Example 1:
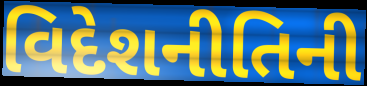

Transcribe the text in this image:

વિદેશનીતિની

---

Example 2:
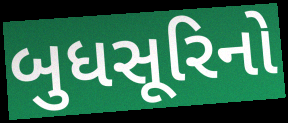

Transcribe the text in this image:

બુધસૂરિનો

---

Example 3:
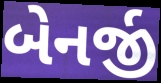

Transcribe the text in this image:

બેનર્જી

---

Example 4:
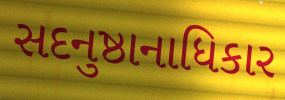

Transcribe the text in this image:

સદનુષ્ઠાનાધિકાર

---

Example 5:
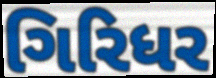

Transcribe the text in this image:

ગિરિધર